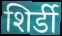
शिर्डी